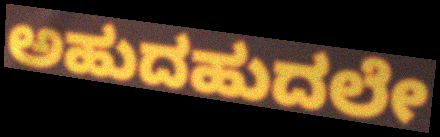
ಅಹುದಹುದಲೇ